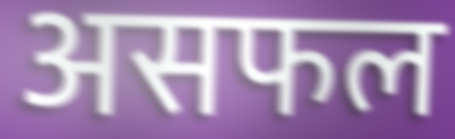
असफल